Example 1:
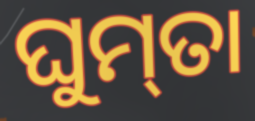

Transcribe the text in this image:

ଘୁମ୍‌ତା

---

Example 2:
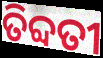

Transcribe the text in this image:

ତିବ୍ଦତୀ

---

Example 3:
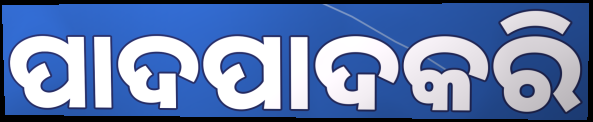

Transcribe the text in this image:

ପାଦପାଦକରି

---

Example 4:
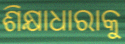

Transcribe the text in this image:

ଶିକ୍ଷାଧାରାକୁ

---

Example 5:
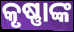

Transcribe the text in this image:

କୃଷ୍ଣାଙ୍କ